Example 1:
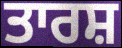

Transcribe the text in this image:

ਤਾਰਸ਼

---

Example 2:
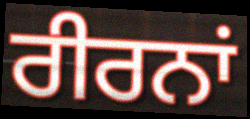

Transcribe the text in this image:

ਰੀਰਨਾਂ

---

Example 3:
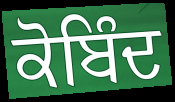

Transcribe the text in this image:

ਕੋਬਿੰਦ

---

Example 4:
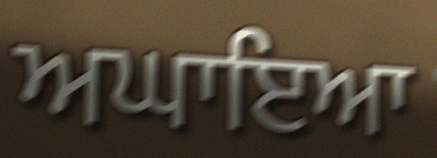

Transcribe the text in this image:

ਅਘਾਇਆ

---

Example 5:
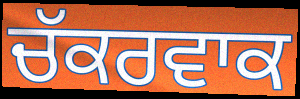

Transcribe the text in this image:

ਚੱਕਰਵਾਕ